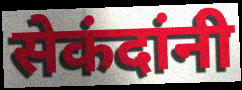
सेकंदांनी